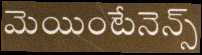
మెయింటేనెన్స్